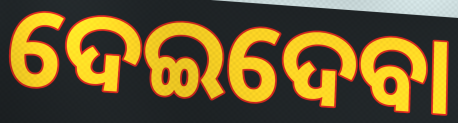
ଦେଇଦେବା